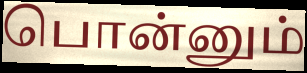
பொன்னும்